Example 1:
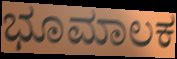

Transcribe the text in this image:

ಭೂಮಾಲಕ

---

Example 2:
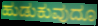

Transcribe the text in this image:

ಹುಡುಕುವುದೂ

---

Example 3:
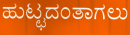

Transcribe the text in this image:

ಹುಟ್ಟದಂತಾಗಲು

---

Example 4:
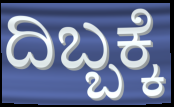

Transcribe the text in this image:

ದಿಬ್ಬಕ್ಕೆ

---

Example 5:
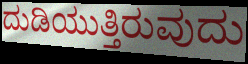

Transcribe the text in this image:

ದುಡಿಯುತ್ತಿರುವುದು